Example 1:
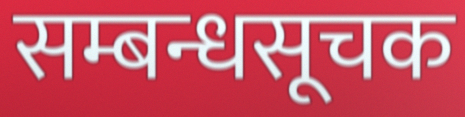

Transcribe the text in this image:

सम्बन्धसूचक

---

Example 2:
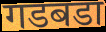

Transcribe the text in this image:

गडबडा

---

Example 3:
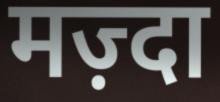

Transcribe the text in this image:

मज़्दा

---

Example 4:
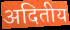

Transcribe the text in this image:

अदितीय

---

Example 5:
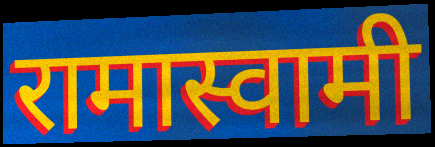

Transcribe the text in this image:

रामास्वामी